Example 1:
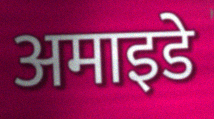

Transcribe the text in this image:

अमाइडे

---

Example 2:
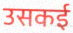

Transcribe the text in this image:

उसकई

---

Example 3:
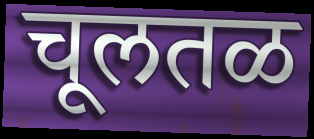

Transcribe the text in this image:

चूलतळ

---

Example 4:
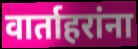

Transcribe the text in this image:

वार्ताहरांना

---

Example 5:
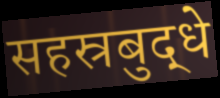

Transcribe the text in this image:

सहस्रबुद्धे